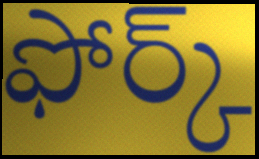
ఫోర్క్